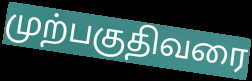
முற்பகுதிவரை